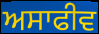
ਅਸਾਫੀਵ